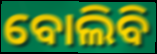
ବୋଲିବି